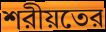
শরীয়তের